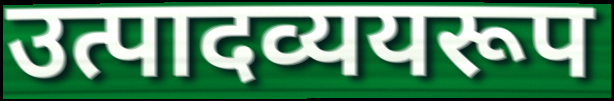
उत्पादव्ययरूप